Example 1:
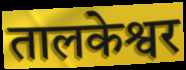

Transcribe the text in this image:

तालकेश्वर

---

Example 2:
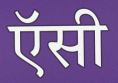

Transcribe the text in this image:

ऍसी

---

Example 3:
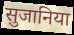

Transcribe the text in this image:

सुजानिया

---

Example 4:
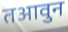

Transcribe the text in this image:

तआवुन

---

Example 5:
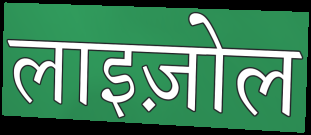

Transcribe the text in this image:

लाइज़ोल